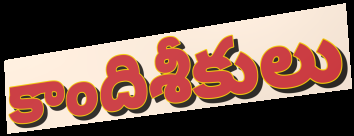
కాందిశీకులు